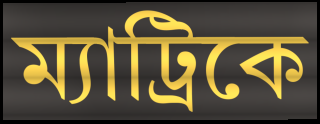
ম্যাট্রিকে